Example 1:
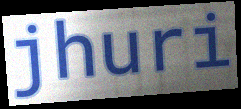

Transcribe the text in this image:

jhuri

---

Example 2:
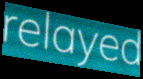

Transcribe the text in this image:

relayed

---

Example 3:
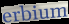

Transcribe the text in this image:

erbium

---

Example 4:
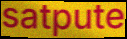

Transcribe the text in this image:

satpute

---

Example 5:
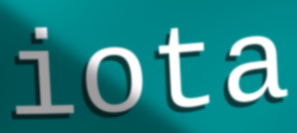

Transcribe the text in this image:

iota